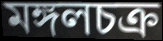
মঙ্গলচক্র